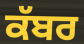
ਕੱਬਰ